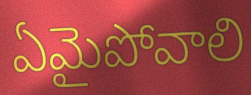
ఏమైపోవాలి